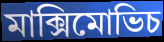
মাক্সিমোভিচ